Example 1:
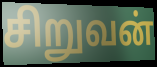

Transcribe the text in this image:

சிறுவன்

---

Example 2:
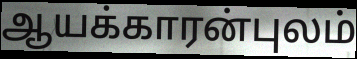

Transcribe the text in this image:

ஆயக்காரன்புலம்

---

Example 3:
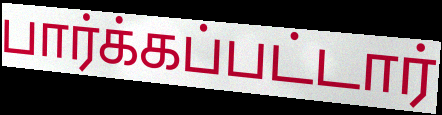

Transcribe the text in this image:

பார்க்கப்பட்டார்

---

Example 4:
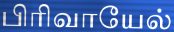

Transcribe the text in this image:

பிரிவாயேல்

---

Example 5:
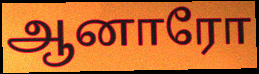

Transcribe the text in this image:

ஆனாரோ